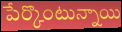
పేర్కొంటున్నాయి